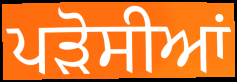
ਪੜੋਸੀਆਂ